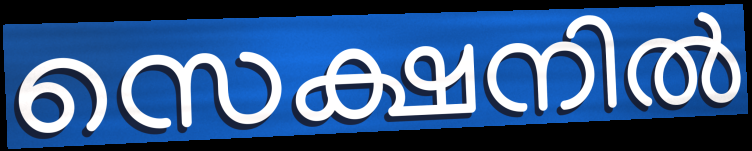
സെക്ഷനിൽ